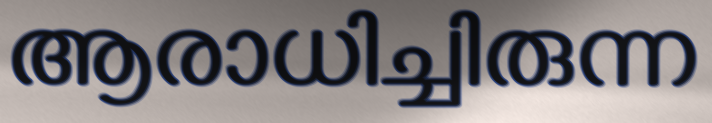
ആരാധിച്ചിരുന്ന